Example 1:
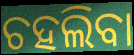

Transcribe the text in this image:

ଚହଲିବା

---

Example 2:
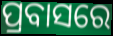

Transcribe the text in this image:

ପ୍ରବାସରେ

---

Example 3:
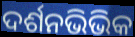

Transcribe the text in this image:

ଦର୍ଶନଭିଭିକ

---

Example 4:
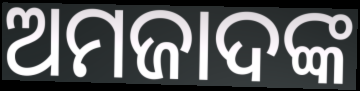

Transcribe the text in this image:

ଅମଜାଦଙ୍କ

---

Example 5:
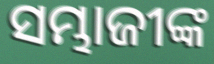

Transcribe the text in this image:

ସମ୍ଭାଜୀଙ୍କ